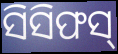
ସିସିଫସ୍